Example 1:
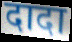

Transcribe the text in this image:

दादा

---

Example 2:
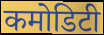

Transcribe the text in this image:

कमोडिटी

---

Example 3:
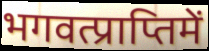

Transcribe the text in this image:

भगवत्प्राप्तिमें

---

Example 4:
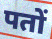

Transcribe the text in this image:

पतों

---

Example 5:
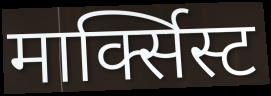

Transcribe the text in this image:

मार्क्सिस्ट